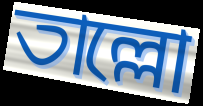
তাল্লো